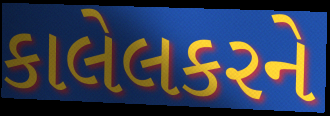
કાલેલકરને